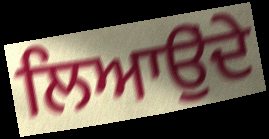
ਲਿਆਉੁਂਦੇ